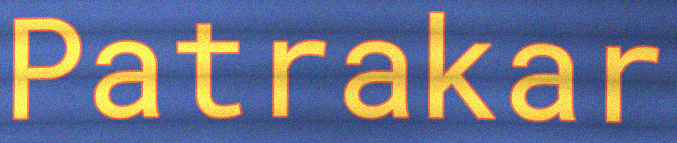
Patrakar